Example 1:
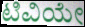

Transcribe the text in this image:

ಟಿವಿಯೇ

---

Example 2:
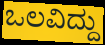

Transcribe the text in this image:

ಒಲವಿದ್ದು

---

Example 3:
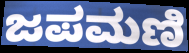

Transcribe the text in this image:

ಜಪಮಣಿ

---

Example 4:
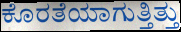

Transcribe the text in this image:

ಕೊರತೆಯಾಗುತ್ತಿತ್ತು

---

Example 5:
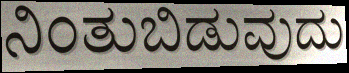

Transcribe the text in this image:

ನಿಂತುಬಿಡುವುದು